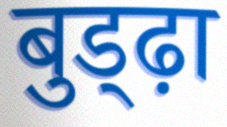
बुड्ढ़ा